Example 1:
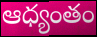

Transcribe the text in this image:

ఆధ్యంతం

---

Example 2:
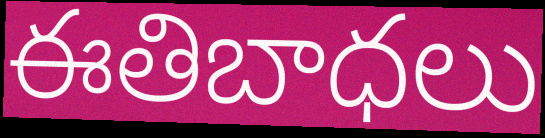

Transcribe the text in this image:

ఈతిబాధలు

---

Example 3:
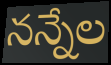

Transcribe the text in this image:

నన్నేల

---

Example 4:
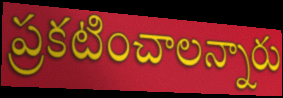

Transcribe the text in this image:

ప్రకటించాలన్నారు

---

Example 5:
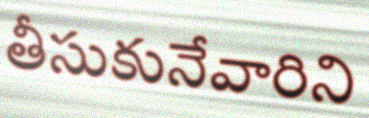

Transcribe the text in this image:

తీసుకునేవారిని